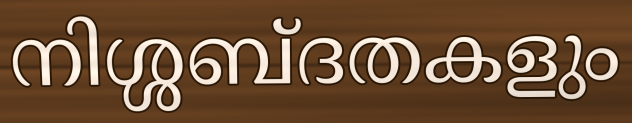
നിശ്ശബ്ദതകളും